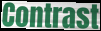
Contrast